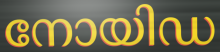
നോയിഡ